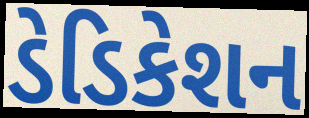
ડેડિકેશન